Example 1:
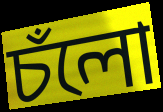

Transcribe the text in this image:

চঁলো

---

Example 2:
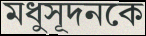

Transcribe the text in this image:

মধুসূদনকে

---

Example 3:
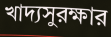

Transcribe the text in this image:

খাদ্যসুরক্ষার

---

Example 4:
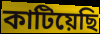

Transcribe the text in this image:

কাটিয়েছি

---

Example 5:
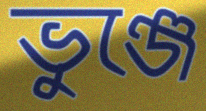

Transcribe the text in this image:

ভুঞ্জে